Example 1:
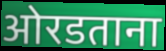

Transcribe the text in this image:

ओरडताना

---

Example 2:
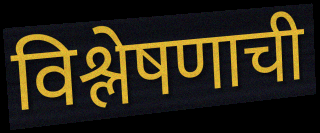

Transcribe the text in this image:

विश्लेषणाची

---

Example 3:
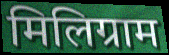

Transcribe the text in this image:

मिलिग्राम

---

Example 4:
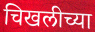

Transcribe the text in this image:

चिखलीच्या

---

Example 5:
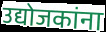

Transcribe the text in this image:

उद्योजकांना